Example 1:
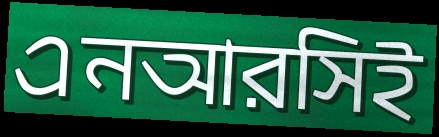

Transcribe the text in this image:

এনআরসিই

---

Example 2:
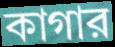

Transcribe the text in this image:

কাগার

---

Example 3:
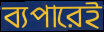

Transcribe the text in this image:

ব্যপারেই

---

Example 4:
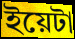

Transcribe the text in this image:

ইয়েটা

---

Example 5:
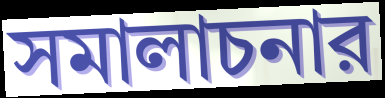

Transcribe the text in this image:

সমালাচনার